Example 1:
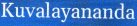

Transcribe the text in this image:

Kuvalayananda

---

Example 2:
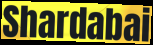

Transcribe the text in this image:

Shardabai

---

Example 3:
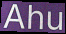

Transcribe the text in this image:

Ahu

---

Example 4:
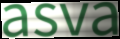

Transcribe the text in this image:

asva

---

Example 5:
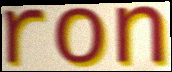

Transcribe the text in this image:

ron